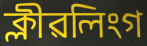
ক্লীৱলিংগ